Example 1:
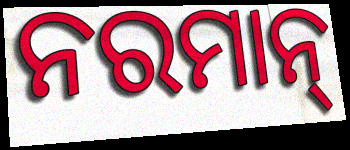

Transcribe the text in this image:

ନରମାନ୍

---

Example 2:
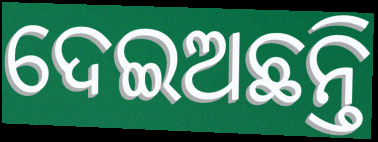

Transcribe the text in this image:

ଦେଇଅଛନ୍ତି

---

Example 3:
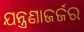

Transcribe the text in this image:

ଯନ୍ତ୍ରଣାଜର୍ଜର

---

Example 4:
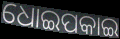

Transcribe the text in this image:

ଧୋଇପକାଇ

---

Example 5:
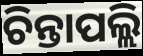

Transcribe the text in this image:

ଚିନ୍ତାପଲ୍ଲି